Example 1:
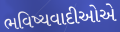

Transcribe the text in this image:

ભવિષ્યવાદીઓએ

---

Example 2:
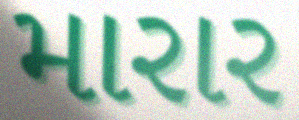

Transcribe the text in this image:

મારાર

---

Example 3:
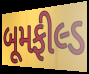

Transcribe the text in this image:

બૂમફીલ્ડ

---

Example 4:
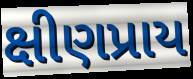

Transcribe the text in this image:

ક્ષીણપ્રાય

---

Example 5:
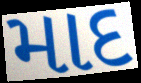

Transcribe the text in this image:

માદ